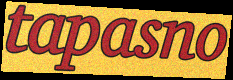
tapasno